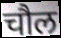
चौल